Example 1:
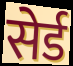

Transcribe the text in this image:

सेर्ड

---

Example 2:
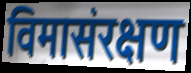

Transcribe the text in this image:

विमासंरक्षण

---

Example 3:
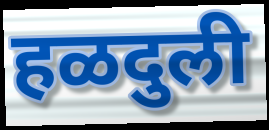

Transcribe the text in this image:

हळदुली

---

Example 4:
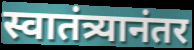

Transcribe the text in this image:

स्वातंत्र्यानंतर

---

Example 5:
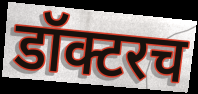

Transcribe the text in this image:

डॉक्टरच